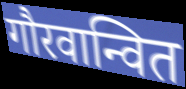
गौरवान्वित